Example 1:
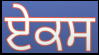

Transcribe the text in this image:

ਏਕਸ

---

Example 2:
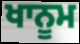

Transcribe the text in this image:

ਖਾਨੂਮ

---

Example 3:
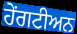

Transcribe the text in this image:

ਹੇਂਗਟੀਅਨ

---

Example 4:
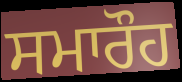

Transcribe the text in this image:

ਸਮਾਰੌਹ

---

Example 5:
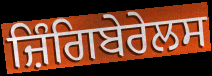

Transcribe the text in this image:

ਜ਼ਿੰਗਿਬੇਰੇਲਸ